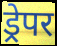
ड्रेपर